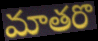
మాతరొ